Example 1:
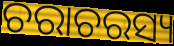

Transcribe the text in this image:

ଚରାଚରସ୍ୟ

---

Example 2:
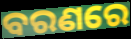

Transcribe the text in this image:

ବରଣରେ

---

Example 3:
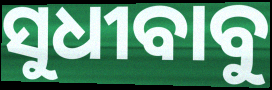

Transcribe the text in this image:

ସୁଧୀବାବୁ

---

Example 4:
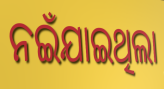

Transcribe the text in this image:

ନଇଁଯାଇଥିଲା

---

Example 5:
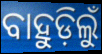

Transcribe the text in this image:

ବାହୁଡ଼ିଲୁଁ